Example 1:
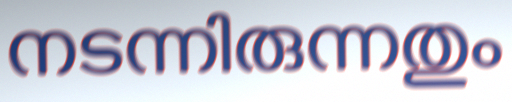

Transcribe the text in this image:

നടന്നിരുന്നതും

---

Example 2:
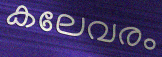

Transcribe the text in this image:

കലേവരം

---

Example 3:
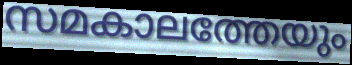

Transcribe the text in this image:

സമകാലത്തേയും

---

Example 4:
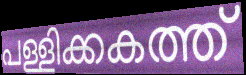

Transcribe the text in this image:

പള്ളിക്കകത്ത്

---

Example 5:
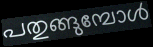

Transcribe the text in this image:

പതുങ്ങുമ്പോൾ